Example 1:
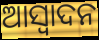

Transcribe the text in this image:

ଆସ୍ଵାଦନ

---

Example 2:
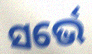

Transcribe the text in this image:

ସର୍ଭେ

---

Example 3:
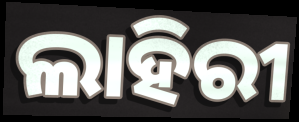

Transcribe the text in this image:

ଲାହିରୀ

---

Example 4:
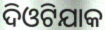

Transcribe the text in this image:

ଦିଓଟିଯାକ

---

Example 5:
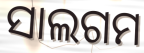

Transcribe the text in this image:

ସାଲଗମ